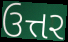
ઉત્તર